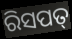
ରିସପତ୍